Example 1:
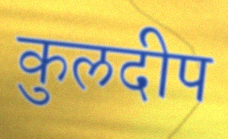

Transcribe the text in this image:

कुलदीप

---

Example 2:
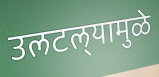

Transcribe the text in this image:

उलटल्यामुळे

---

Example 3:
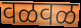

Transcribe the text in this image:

वळवळ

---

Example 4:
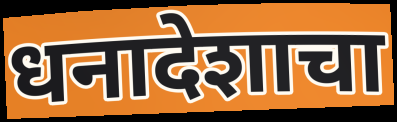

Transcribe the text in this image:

धनादेशाचा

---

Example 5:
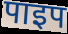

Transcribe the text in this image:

पाइप